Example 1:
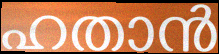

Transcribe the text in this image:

ഹതാൻ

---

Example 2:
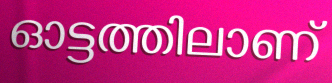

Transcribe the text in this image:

ഓട്ടത്തിലാണ്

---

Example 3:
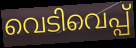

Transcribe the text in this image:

വെടിവെപ്പ്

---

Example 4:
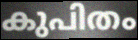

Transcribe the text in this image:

കുപിതം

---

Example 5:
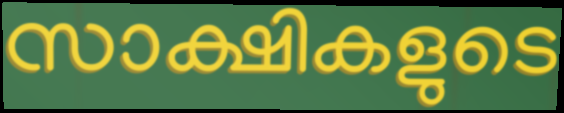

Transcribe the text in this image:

സാക്ഷികളുടെ